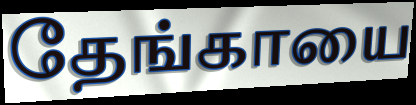
தேங்காயை